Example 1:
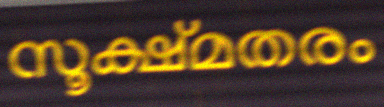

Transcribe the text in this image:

സൂക്ഷ്മതരം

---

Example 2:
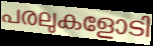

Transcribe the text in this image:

പരലുകളോടി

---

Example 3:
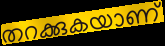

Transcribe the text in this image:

തറക്കുകയാണ്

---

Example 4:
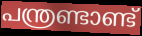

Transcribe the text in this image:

പന്ത്രണ്ടാണ്ട്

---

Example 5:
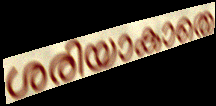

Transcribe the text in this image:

ശരിയാകാതെ